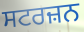
ਸਟਰਜ਼ਨ